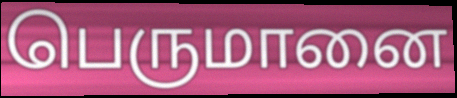
பெருமானை